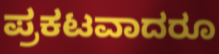
ಪ್ರಕಟವಾದರೂ